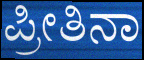
ಪ್ರೀತಿನಾ